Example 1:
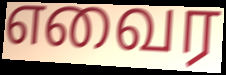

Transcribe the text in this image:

எவைர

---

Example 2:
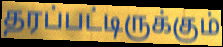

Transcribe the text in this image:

தரப்பட்டிருக்கும்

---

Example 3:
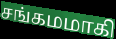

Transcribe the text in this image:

சங்கமமாகி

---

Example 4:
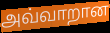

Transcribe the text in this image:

அவ்வாறான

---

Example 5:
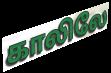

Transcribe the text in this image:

காலிலே